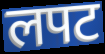
लपट